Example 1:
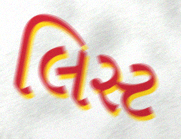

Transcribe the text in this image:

લિસ્ટ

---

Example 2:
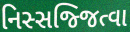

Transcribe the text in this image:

નિસ્સજ્જિત્વા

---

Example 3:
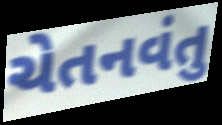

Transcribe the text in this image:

ચેતનવંતુ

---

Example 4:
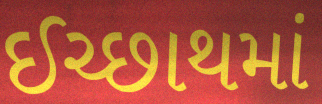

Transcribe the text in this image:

ઈચ્છાથમાં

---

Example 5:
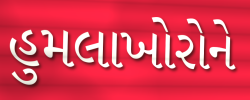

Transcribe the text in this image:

હુમલાખોરોને